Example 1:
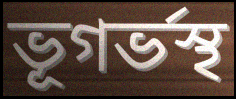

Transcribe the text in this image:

ভূগৰ্ভস্থ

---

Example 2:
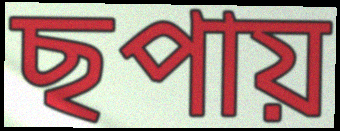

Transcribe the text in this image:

ছপায়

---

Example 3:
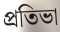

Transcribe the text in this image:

প্ৰতিভা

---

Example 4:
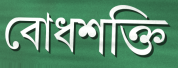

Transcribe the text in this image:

বোধশক্তি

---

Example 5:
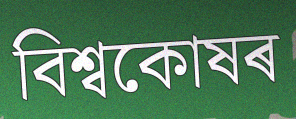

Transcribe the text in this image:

বিশ্বকোষৰ